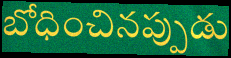
బోధించినప్పుడు